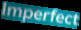
Imperfect